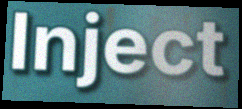
Inject